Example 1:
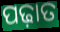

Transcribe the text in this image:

ପଢ଼ାତ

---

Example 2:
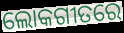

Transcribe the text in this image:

ଲୋକଗୀତରେ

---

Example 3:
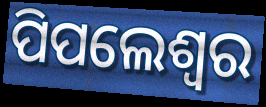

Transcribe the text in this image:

ପିପଲେଶ୍ୱର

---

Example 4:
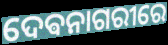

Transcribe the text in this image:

ଦେଵନାଗରୀରେ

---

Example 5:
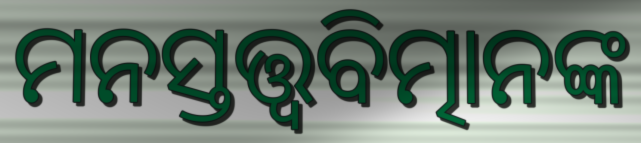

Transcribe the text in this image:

ମନସ୍ତତ୍ତ୍ବବିତ୍ମାନଙ୍କ